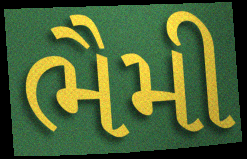
ભૈમી